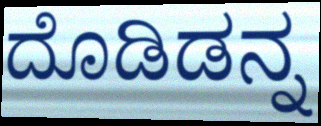
ದೊಡಿಡನ್ನ